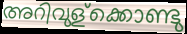
അറിവുള്ക്കൊണ്ടു